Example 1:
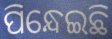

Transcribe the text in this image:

ପିନ୍ଧେଇଛି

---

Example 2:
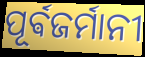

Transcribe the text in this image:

ପୂର୍ଵଜର୍ମାନୀ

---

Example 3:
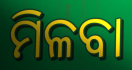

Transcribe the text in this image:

ମିଳବା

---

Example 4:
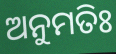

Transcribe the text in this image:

ଅନୁମତିଃ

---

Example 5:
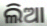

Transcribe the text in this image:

ଲିଆ